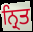
ਨ੍ਰਿਤ